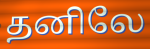
தனிலே